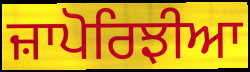
ਜ਼ਾਪੋਰਿਝੀਆ